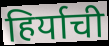
हिर्याची